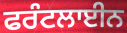
ਫਰੰਟਲਾਈਨ